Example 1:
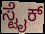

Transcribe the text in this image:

ಸ್ಟೈಕ್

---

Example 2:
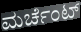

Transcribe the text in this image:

ಮರ್ಚೆಂಟ್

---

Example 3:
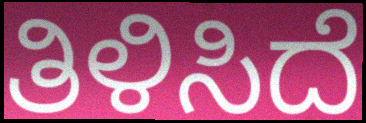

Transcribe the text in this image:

ತಿಳಿಸಿದೆ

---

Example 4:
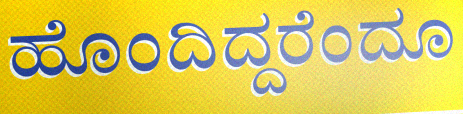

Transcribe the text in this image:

ಹೊಂದಿದ್ದರೆಂದೂ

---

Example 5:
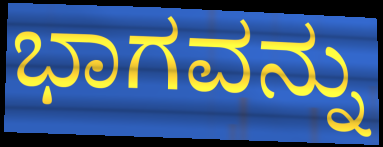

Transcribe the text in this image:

ಭಾಗವನ್ನು